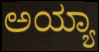
ಅಯ್ಯಾ